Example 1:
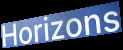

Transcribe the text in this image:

Horizons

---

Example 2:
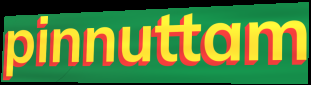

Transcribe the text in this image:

pinnuttam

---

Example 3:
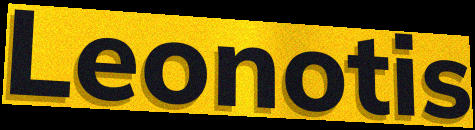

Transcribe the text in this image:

Leonotis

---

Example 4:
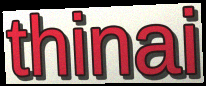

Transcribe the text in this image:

thinai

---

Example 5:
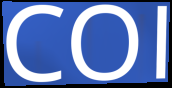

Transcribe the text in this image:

COI